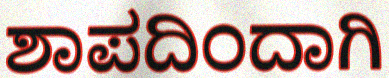
ಶಾಪದಿಂದಾಗಿ